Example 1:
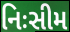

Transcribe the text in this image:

નિઃસીમ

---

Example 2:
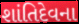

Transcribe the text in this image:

શાંતિદેવના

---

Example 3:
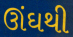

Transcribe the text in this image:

ઊંઘથી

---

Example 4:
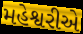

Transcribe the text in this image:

મહેશ્વરીએ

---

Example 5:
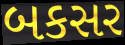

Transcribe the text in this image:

બકસર